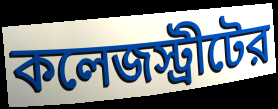
কলেজস্ট্রীটের